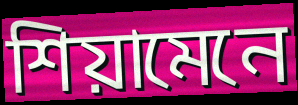
শিয়ামেনে